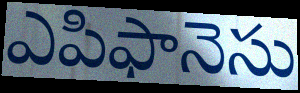
ఎపిఫానెసు